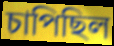
চাপিছিল